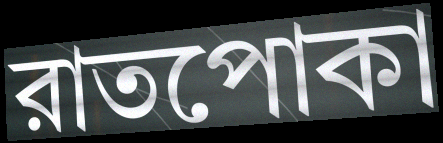
রাতপোকা